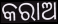
କରାଅ